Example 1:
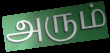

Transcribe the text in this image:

அரும்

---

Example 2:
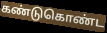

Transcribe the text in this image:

கண்டுகொண்ட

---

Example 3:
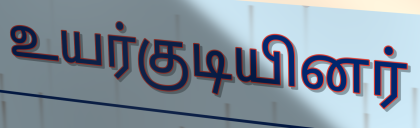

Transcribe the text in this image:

உயர்குடியினர்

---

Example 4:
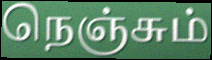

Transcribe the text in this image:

நெஞ்சும்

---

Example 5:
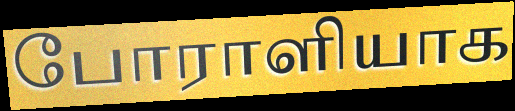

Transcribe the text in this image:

போராளியாக